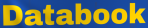
Databook